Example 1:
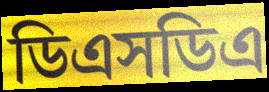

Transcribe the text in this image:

ডিএসডিএ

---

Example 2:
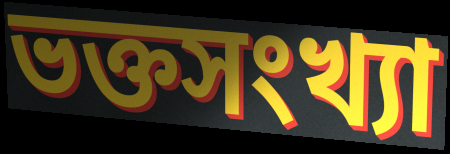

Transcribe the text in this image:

ভক্তসংখ্যা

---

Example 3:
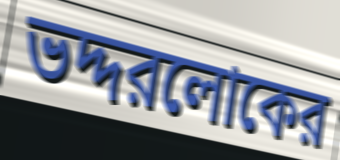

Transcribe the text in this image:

ভদ্দরলোকের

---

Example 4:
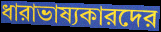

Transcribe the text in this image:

ধারাভাষ্যকারদের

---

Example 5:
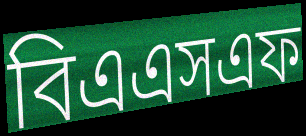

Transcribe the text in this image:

বিএএসএফ